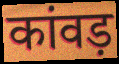
कांवड़